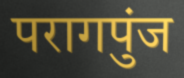
परागपुंज